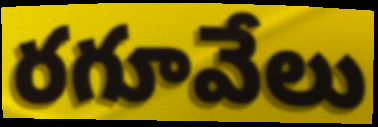
రగూవేలు